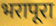
भरापूरा